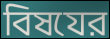
বিষযের